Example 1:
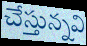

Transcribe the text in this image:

చేస్తున్నవి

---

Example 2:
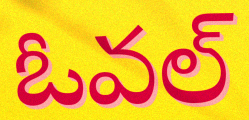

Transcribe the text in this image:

ఓవల్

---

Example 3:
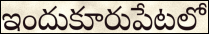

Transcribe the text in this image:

ఇందుకూరుపేటలో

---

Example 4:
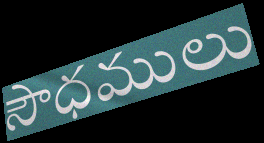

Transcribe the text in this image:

సౌధములు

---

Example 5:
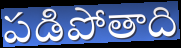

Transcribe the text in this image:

పడిపోతాది